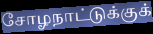
சோழநாட்டுக்குக்